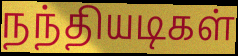
நந்தியடிகள்